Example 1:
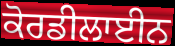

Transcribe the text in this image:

ਕੋਰਡੀਲਾਈਨ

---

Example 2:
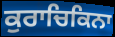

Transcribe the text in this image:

ਕੁਰਾਚਿਕਿਨਾ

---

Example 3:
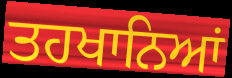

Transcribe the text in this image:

ਤਹਖਾਨਿਆਂ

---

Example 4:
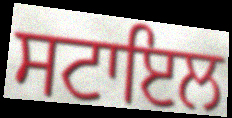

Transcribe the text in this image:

ਸਟਾਇਲ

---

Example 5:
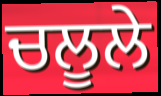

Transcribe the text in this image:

ਚਲੂਲੇ